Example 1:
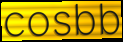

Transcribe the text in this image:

cosbb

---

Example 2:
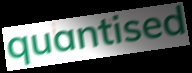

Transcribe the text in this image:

quantised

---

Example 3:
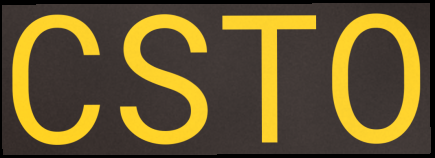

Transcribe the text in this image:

CSTO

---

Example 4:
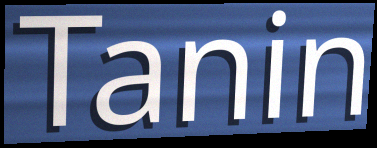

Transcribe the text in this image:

Tanin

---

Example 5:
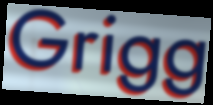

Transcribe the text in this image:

Grigg